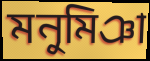
মনুমিঞা